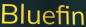
Bluefin